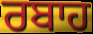
ਰਬਾਹ